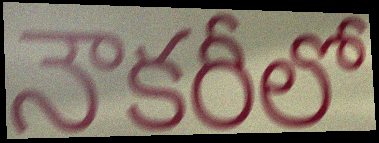
నౌకరీలో